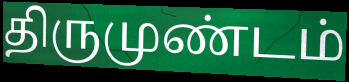
திருமுண்டம்